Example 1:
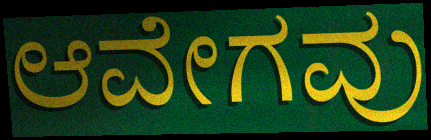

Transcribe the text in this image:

ಆವೇಗವು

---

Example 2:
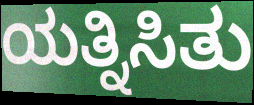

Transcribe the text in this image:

ಯತ್ನಿಸಿತು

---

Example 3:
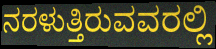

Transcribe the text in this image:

ನರಳುತ್ತಿರುವವರಲ್ಲಿ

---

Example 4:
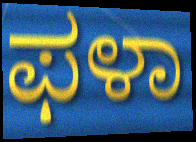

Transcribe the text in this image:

ಫಳಾ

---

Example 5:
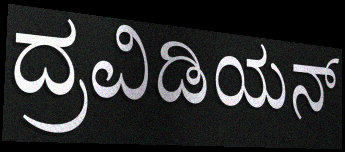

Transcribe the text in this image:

ದ್ರವಿಡಿಯನ್